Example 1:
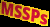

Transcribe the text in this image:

MSSPs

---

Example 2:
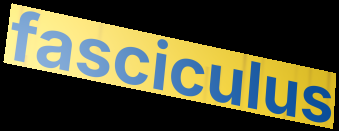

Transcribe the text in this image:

fasciculus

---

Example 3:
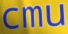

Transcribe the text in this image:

cmu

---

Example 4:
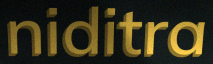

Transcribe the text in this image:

niditra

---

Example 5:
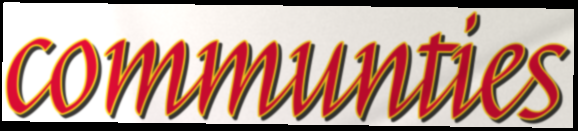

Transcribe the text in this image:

communties